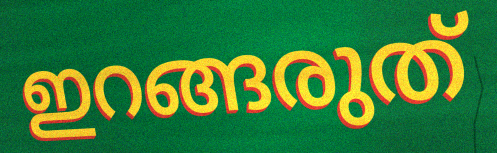
ഇറങ്ങരുത്